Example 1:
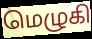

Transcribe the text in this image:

மெழுகி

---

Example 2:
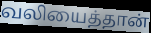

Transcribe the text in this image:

வலியைத்தான்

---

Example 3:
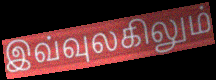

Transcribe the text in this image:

இவ்வுலகிலும்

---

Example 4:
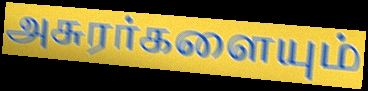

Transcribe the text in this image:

அசுரர்களையும்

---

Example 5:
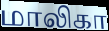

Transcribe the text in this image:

மாலிகா